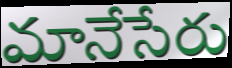
మానేసేరు